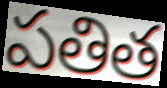
పతిత